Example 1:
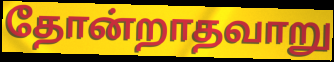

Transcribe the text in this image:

தோன்றாதவாறு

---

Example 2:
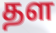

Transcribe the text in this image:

தள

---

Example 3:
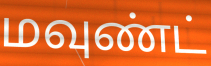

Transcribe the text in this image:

மவுண்ட்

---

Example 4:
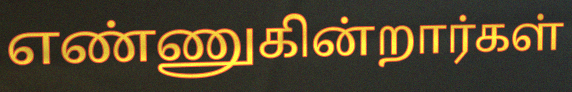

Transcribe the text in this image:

எண்ணுகின்றார்கள்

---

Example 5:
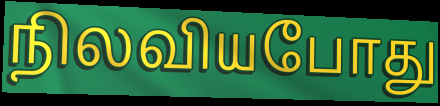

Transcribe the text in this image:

நிலவியபோது